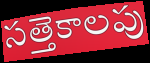
సత్తెకాలపు